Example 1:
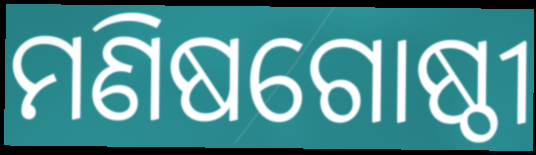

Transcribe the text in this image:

ମଣିଷଗୋଷ୍ଠୀ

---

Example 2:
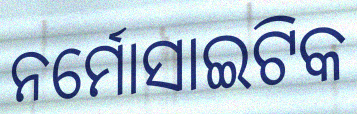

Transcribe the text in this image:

ନର୍ମୋସାଇଟିକ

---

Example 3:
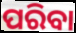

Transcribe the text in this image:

ପରିବା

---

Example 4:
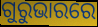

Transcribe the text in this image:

ଗୁରୁଭାରରେ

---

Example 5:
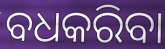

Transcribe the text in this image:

ବଧକରିବା